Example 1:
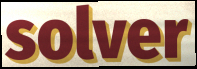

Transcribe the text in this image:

solver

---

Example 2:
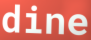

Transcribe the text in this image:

dine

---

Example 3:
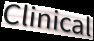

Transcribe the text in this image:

Clinical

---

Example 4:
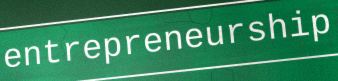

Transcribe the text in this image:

entrepreneurship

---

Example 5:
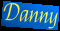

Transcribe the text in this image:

Danny